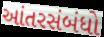
આંતરસંબંધો